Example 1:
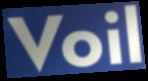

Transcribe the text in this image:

Voil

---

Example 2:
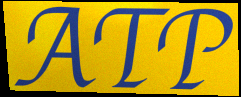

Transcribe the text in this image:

ATP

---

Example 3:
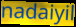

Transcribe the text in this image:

nadaiyil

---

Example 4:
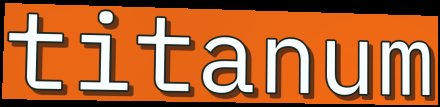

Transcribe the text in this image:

titanum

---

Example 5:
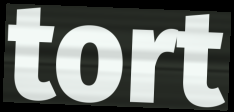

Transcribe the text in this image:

tort